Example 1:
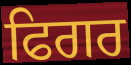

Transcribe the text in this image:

ਫਿਗਰ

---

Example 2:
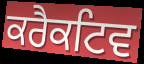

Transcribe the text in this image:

ਕਰੈਕਟਿਵ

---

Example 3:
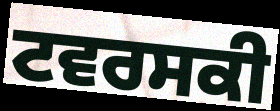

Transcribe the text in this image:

ਟਵਰਸਕੀ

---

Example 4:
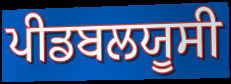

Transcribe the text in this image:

ਪੀਡਬਲਯੂਸੀ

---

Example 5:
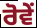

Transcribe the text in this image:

ਰੋਵੇਂ